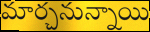
మార్చనున్నాయి